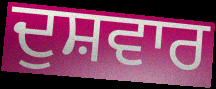
ਦੁਸ਼ਵਾਰ